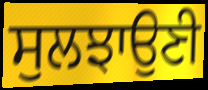
ਸੁਲਝਾਉਣੀ